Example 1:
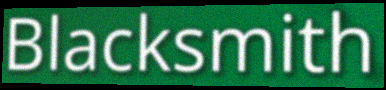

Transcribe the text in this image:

Blacksmith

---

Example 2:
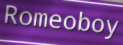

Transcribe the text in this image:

Romeoboy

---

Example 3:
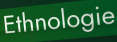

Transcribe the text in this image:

Ethnologie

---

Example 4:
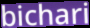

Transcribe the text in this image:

bichari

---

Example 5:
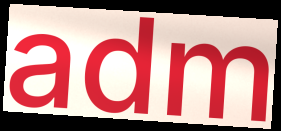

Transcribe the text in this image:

adm